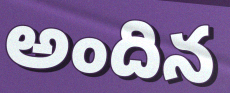
అందిన